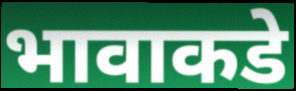
भावाकडे